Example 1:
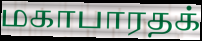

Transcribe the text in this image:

மகாபாரதக்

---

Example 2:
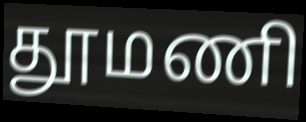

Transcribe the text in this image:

தூமணி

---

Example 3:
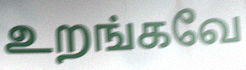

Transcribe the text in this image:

உறங்கவே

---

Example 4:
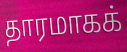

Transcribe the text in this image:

தாரமாகக்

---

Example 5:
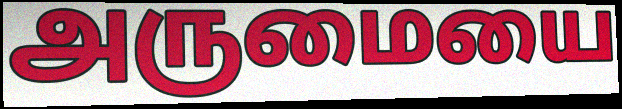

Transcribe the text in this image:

அருமையை